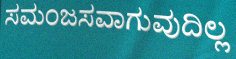
ಸಮಂಜಸವಾಗುವುದಿಲ್ಲ